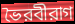
ভৈরবীরাগ